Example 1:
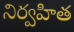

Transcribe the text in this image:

నిర్వహిత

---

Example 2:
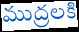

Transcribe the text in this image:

ముద్రలకి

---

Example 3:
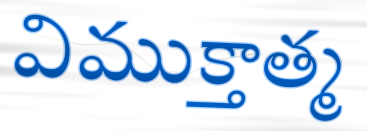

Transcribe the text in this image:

విముక్తాత్మ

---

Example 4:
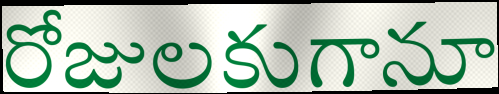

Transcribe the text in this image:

రోజులకుగానూ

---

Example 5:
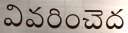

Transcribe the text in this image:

వివరించెద